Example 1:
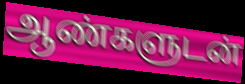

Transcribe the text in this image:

ஆண்களுடன்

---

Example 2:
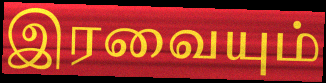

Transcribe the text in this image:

இரவையும்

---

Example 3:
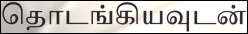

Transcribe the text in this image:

தொடங்கியவுடன்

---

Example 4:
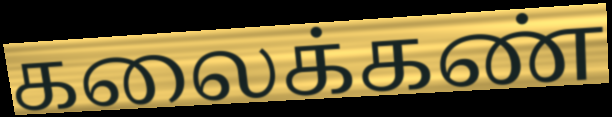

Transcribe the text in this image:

கலைக்கண்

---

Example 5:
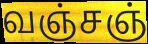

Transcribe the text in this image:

வஞ்சஞ்